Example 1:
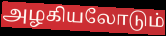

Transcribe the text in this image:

அழகியலோடும்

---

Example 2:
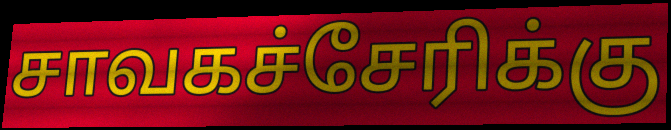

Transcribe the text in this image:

சாவகச்சேரிக்கு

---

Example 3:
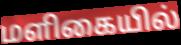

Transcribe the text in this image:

மளிகையில்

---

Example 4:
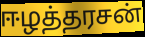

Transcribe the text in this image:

ஈழத்தரசன்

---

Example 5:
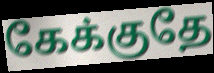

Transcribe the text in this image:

கேக்குதே